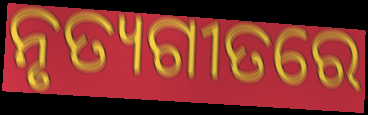
ନୃତ୍ୟଗୀତରେ